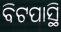
ବିଟପାସ୍ଥି